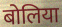
बोलिया